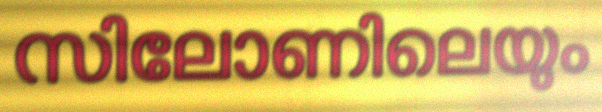
സിലോണിലെയും